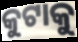
କୁଟାକୁ